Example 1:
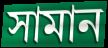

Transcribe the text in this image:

সামান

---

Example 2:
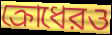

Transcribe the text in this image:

ক্রোধেরও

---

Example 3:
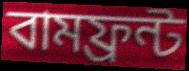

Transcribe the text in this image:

বামফ্রন্ট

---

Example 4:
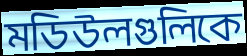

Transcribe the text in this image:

মডিউলগুলিকে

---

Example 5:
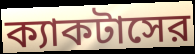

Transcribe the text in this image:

ক্যাকটাসের